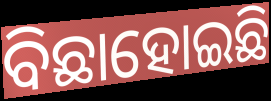
ବିଛାହୋଇଛି